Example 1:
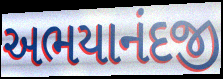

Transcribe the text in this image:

અભયાનંદજી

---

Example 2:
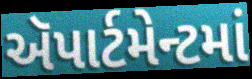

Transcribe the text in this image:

ઍપાર્ટમેન્ટમાં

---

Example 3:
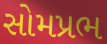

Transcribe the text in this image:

સોમપ્રભ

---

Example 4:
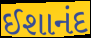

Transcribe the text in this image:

ઈશાનંદ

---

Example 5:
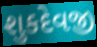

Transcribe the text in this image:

શુકદેવજી